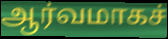
ஆர்வமாகச்